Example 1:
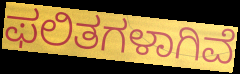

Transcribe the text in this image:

ಫಲಿತಗಳಾಗಿವೆ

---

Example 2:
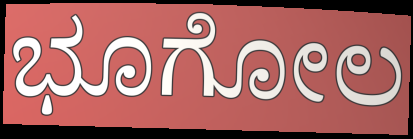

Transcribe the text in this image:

ಭೂಗೋಲ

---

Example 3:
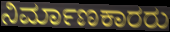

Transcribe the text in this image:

ನಿರ್ಮಾಣಕಾರರು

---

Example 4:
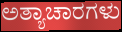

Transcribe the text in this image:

ಅತ್ಯಾಚಾರಗಳು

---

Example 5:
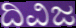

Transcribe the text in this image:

ದಿವಿಜ